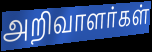
அறிவாளர்கள்